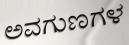
ಅವಗುಣಗಳ